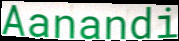
Aanandi